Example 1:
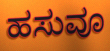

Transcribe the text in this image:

ಹಸುವೂ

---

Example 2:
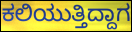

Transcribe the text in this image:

ಕಲಿಯುತ್ತಿದ್ದಾಗ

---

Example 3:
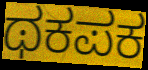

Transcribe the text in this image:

ಥಕಪಕ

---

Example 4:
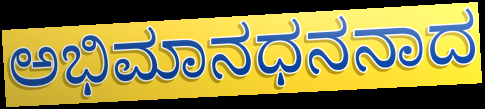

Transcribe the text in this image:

ಅಭಿಮಾನಧನನಾದ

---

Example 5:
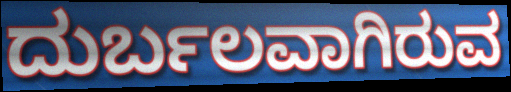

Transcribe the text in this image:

ದುರ್ಬಲವಾಗಿರುವ